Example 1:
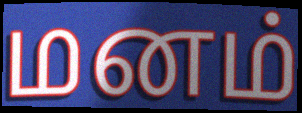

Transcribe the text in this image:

மனம்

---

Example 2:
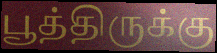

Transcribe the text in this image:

பூத்திருக்கு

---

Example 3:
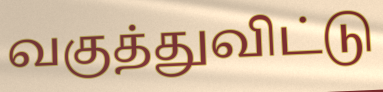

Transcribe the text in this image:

வகுத்துவிட்டு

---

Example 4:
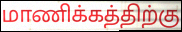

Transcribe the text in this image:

மாணிக்கத்திற்கு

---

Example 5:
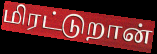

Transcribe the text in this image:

மிரட்டுறான்